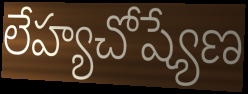
లేహ్యచోష్యేణ